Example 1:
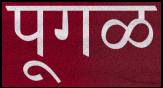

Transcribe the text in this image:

पूगळ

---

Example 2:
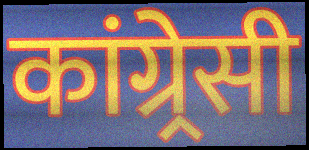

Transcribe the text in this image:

कांग्र्रेसी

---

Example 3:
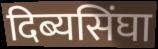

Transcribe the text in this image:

दिब्यसिंघा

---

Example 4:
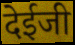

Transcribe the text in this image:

देईजी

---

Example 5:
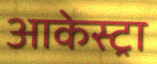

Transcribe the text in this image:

आकेस्ट्रा